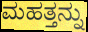
ಮಹತ್ತನ್ನು